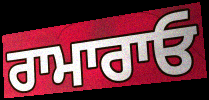
ਰਾਮਾਰਾਓ